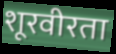
शूरवीरता